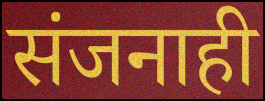
संजनाही